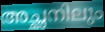
അച്ഛനിലും